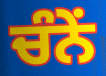
ਚੰਨੇਂ